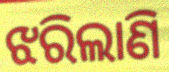
ଝରିଲାଣି